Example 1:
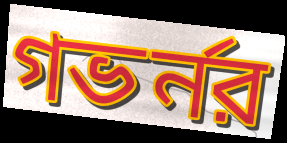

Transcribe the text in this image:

গভর্নর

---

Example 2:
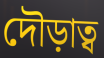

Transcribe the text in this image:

দৌড়াত্ব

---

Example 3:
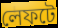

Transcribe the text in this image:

লেফটে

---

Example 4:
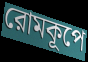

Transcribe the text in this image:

রোমকূপে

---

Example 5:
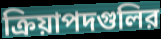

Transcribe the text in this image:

ক্রিয়াপদগুলির